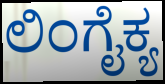
ಲಿಂಗೈಕ್ಯ